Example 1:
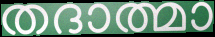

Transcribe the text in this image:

തദാത്മാ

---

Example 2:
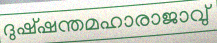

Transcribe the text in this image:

ദുഷ്ഷന്തമഹാരാജാവു്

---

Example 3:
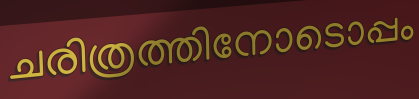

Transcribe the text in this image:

ചരിത്രത്തിനോടൊപ്പം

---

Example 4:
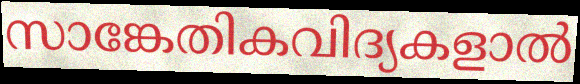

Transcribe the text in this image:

സാങ്കേതികവിദ്യകളാൽ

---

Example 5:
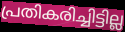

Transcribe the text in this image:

പ്രതികരിച്ചിട്ടില്ല